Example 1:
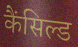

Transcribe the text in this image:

कैंसिल्ड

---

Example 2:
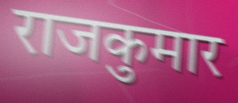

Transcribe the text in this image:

राजकुमार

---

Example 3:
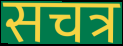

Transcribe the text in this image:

सचत्र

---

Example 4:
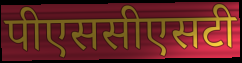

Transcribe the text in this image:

पीएससीएसटी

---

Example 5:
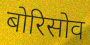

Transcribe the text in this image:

बोरिसोव